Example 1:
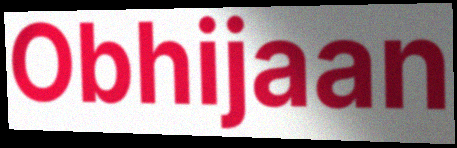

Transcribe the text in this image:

Obhijaan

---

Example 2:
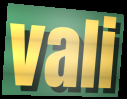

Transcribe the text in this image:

vali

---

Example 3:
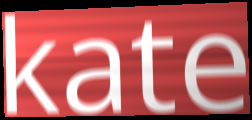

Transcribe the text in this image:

kate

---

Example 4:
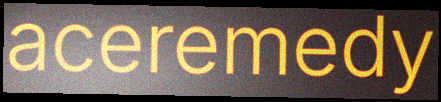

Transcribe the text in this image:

aceremedy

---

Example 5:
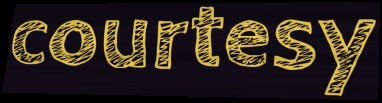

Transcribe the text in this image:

courtesy